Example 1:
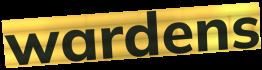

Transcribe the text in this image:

wardens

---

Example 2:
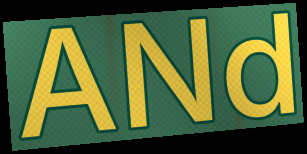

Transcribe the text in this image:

ANd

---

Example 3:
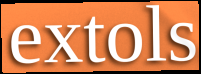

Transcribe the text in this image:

extols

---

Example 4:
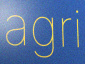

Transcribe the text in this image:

agri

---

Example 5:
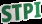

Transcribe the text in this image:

STPI